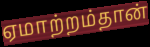
ஏமாற்றம்தான்